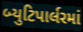
બ્યુટિપાર્લરમાં